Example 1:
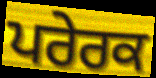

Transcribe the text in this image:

ਪਰੇਰਕ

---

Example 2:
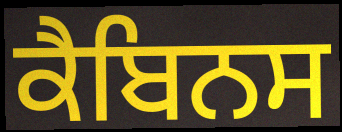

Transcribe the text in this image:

ਕੈਬਿਨਸ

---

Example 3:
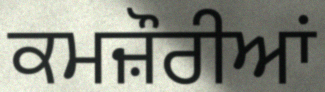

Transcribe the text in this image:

ਕਮਜ਼ੌਰੀਆਂ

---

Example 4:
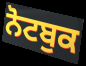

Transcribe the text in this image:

ਨੋਟਬੁਕ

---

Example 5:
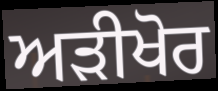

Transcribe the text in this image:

ਅੜੀਖੋਰ